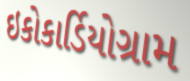
ઇકોકાર્ડિયોગ્રામ